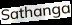
Sathanga